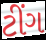
ટીંગ